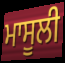
ਮਾਸੂਲੀ